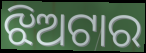
ଝିଅଟାର